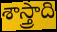
శాస్త్రాది